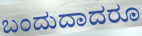
ಬಂದುದಾದರೂ